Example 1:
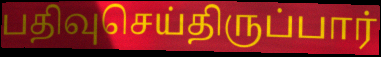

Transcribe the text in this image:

பதிவுசெய்திருப்பார்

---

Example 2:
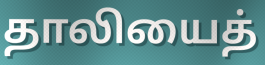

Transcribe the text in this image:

தாலியைத்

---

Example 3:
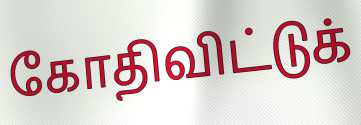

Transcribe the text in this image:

கோதிவிட்டுக்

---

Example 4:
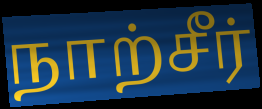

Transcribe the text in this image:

நாற்சீர்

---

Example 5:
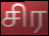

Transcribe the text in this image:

சிர